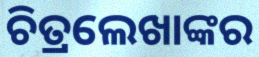
ଚିତ୍ରଲେଖାଙ୍କର